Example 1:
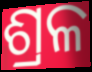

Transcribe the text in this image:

ଶ୍ରଳ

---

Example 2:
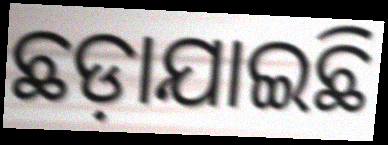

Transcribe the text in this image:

ଛଡ଼ାଯାଇଛି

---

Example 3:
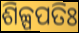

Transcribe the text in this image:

ଶିଳ୍ପପତିଃ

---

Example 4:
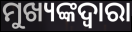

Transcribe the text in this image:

ମୁଖ୍ୟଙ୍କଦ୍ଵାରା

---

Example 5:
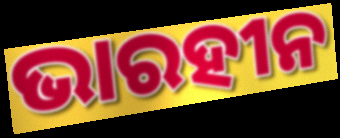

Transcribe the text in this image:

ଭାରହୀନ